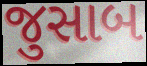
જુસાબ